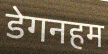
डेगनहम